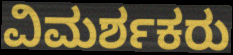
ವಿಮರ್ಶಕರು